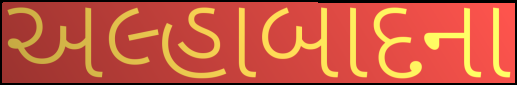
અલ્હાબાદના